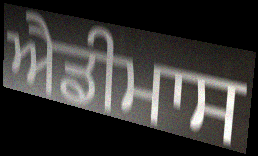
ਐਡੀਮਾਸ